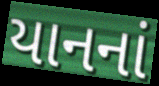
યાનનાં